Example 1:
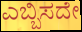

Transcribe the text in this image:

ಎಬ್ಬಿಸದೇ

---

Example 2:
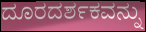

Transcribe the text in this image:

ದೂರದರ್ಶಕವನ್ನು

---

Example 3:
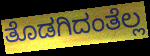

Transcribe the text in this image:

ತೊಡಗಿದಂತೆಲ್ಲ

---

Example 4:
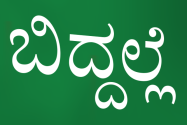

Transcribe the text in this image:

ಬಿದ್ದಲ್ಲೆ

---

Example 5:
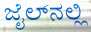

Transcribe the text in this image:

ಜೈಲ್‌ನಲ್ಲಿ